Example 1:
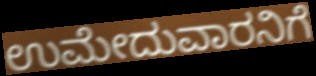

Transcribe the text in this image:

ಉಮೇದುವಾರನಿಗೆ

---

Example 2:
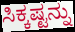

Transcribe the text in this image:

ಸಿಕ್ಕಷ್ಟನ್ನು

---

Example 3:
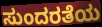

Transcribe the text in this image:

ಸುಂದರತೆಯ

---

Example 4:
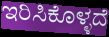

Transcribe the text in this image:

ಇರಿಸಿಕೊಳ್ಳದೆ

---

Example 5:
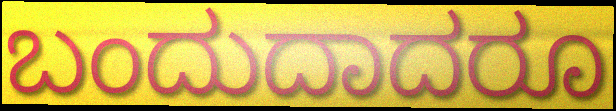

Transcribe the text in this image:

ಬಂದುದಾದರೂ